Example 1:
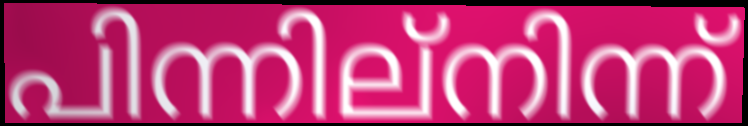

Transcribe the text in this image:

പിന്നില്നിന്ന്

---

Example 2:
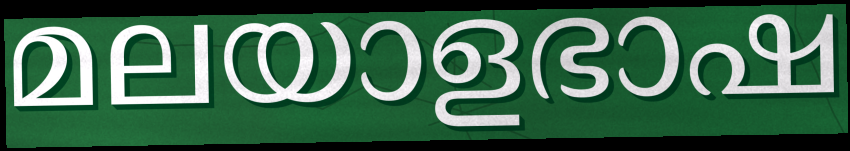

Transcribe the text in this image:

മലയാളഭാഷ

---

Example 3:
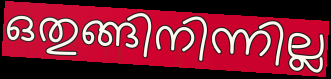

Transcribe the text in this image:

ഒതുങ്ങിനിന്നില്ല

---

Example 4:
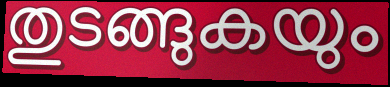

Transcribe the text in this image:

തുടങ്ങുകയും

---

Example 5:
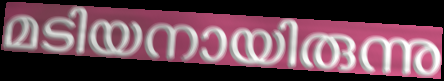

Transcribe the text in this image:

മടിയനായിരുന്നു